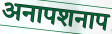
अनापशनाप